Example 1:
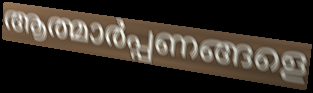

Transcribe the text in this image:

ആത്മാർപ്പണങ്ങളെ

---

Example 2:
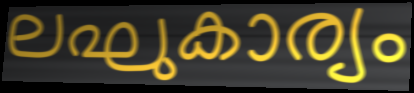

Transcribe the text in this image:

ലഘുകാര്യം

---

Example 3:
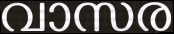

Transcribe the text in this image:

വാസര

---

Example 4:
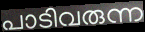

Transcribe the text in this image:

പാടിവരുന്ന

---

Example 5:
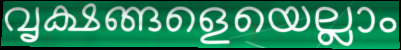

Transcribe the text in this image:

വൃക്ഷങ്ങളെയെല്ലാം